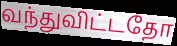
வந்துவிட்டதோ